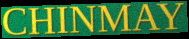
CHINMAY